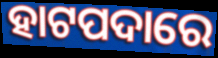
ହାଟପଦାରେ